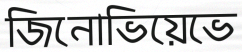
জিনোভিয়েভে